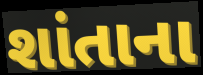
શાંતાના